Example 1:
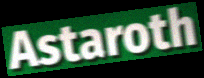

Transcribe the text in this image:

Astaroth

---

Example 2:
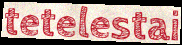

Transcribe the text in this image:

tetelestai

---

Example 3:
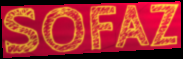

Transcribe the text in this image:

SOFAZ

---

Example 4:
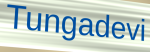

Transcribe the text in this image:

Tungadevi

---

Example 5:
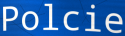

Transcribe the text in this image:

Polcie